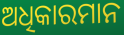
ଅଧିକାରମାନ